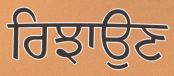
ਰਿਝਾਉਣ